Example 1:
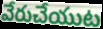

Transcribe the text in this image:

వేరుచేయుట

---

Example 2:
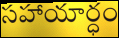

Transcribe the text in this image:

సహాయార్ధం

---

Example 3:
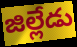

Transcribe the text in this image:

జిల్లేడు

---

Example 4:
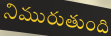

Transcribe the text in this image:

నిమురుతుంది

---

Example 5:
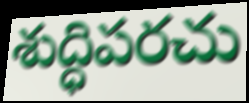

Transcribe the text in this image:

శుద్ధిపరచు